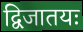
द्विजातयः